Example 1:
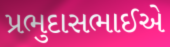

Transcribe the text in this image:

પ્રભુદાસભાઈએ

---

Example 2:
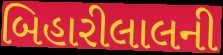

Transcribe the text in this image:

બિહારીલાલની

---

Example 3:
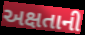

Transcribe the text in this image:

અક્ષતાની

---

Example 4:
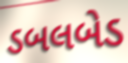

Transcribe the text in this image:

ડબલબેડ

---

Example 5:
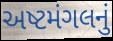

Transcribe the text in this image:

અષ્ટમંગલનું